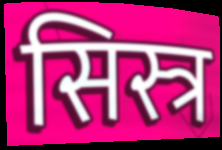
सिस्त्र